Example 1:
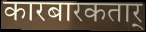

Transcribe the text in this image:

कारबारकतार्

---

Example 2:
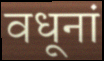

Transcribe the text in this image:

वधूनां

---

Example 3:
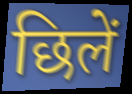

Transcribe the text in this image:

छिलें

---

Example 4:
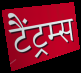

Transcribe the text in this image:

टैंट्रम्स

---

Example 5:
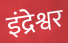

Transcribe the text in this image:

इंद्रेश्वर